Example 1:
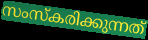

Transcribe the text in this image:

സംസ്കരിക്കുന്നത്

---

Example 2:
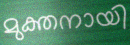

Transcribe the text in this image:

മുക്തനായി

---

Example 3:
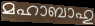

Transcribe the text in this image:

മഹാബാഹു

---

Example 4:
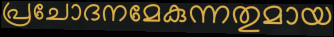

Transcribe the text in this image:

പ്രചോദനമേകുന്നതുമായ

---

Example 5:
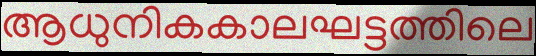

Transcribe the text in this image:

ആധുനികകാലഘട്ടത്തിലെ